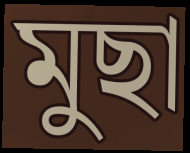
মুছা